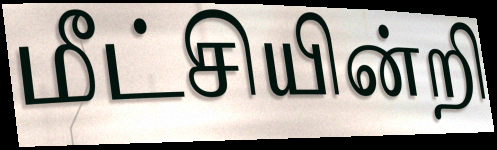
மீட்சியின்றி